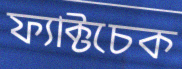
ফ্যাক্টচেক